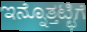
ಇನ್ನೊತ್ತಟ್ಟಿಗೆ